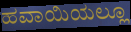
ಹವಾಯಿಯಲ್ಲೂ